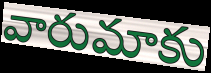
వారుమాకు